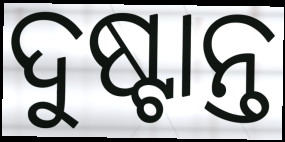
ଦୁଷ୍ଟାନ୍ତ